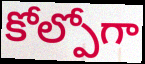
కోల్పోగా